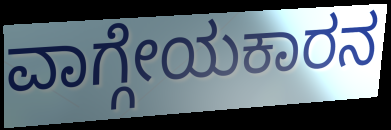
ವಾಗ್ಗೇಯಕಾರನ